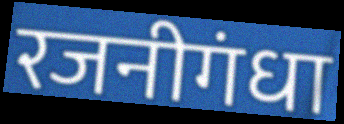
रजनीगंधा